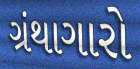
ગ્રંથાગારો